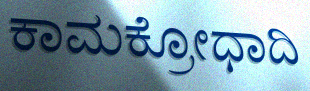
ಕಾಮಕ್ರೋಧಾದಿ